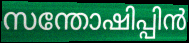
സന്തോഷിപ്പിൻ